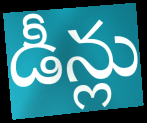
డీన్లు